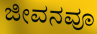
ಜೀವನವೂ